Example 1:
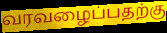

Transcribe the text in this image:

வரவழைப்பதற்கு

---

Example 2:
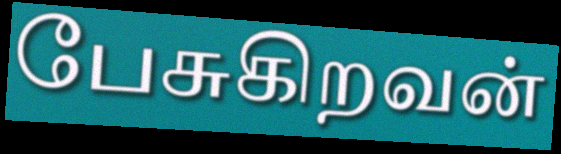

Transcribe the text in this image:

பேசுகிறவன்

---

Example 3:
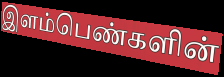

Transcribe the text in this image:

இளம்பெண்களின்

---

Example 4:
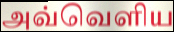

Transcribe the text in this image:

அவ்வெளிய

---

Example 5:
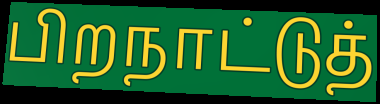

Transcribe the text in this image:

பிறநாட்டுத்